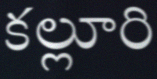
కల్లూరి